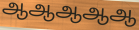
ஆஆஆஆஆ